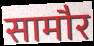
सामौर